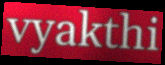
vyakthi